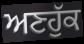
ਅਣਹੁੱਕ